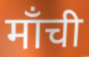
माँची